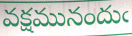
వక్షమునందుఁ